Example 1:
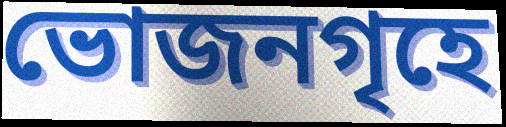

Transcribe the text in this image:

ভোজনগৃহে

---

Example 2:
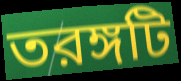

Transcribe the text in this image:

তরঙ্গটি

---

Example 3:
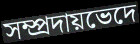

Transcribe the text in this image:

সম্প্রদায়ভেদে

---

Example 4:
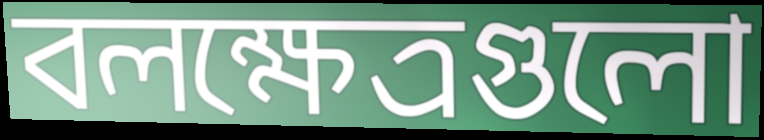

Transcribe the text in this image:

বলক্ষেত্রগুলো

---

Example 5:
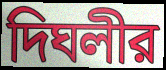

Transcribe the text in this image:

দিঘলীর